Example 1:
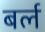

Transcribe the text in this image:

बर्ल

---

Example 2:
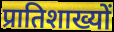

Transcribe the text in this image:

प्रातिशाख्यों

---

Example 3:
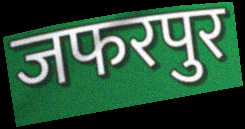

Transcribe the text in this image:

जफरपुर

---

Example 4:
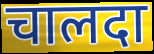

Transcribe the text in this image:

चालदा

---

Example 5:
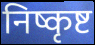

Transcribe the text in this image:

निष्कृष्ट